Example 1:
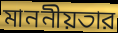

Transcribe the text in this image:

মাননীয়তার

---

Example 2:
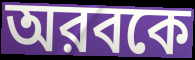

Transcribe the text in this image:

অরবকে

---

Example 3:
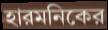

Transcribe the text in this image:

হারমনিকের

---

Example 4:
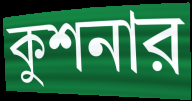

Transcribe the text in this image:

কুশনার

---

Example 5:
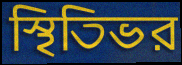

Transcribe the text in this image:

স্থিতিভর